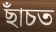
ছাঁচত